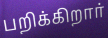
பறிக்கிறார்